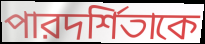
পারদর্শিতাকে